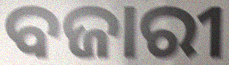
ବଜାରୀ